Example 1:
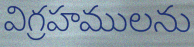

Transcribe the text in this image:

విగ్రహములను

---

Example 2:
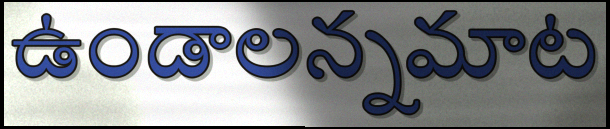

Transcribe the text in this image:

ఉండాలన్నమాట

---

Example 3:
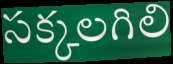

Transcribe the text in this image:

సక్కలగిలి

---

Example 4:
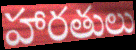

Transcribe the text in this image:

హారతులు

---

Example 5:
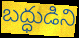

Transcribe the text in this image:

బద్ధుడిని